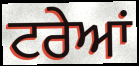
ਟਰੇਆਂ